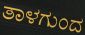
ತಾಳಗುಂದ